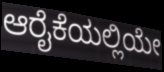
ಆರೈಕೆಯಲ್ಲಿಯೇ